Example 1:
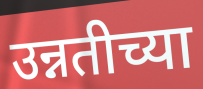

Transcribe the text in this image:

उन्नतीच्या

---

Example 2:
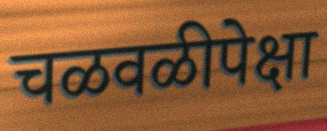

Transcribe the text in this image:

चळवळीपेक्षा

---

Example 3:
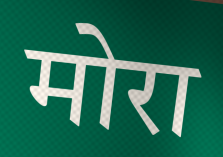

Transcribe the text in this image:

मोरा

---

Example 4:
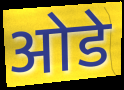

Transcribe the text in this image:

ओडे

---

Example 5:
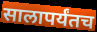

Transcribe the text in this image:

सालापर्यंतच